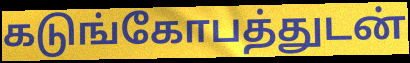
கடுங்கோபத்துடன்